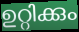
ഉറ്റിക്കും